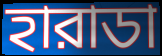
হারাডা